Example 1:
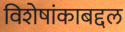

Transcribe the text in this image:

विशेषांकाबद्दल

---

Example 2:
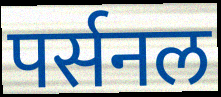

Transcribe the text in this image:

पर्सनल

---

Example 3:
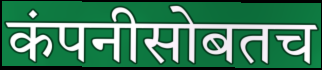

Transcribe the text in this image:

कंपनीसोबतच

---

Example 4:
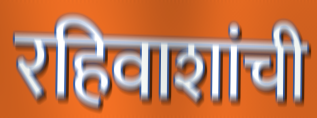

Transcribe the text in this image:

रहिवाशांची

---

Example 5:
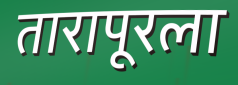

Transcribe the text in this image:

तारापूरला